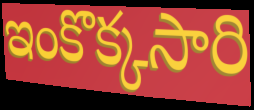
ఇంకొక్కసారి